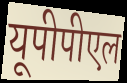
यूपीपीएल